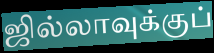
ஜில்லாவுக்குப்